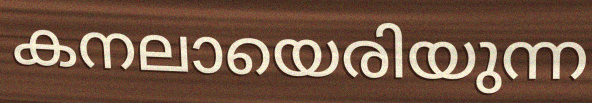
കനലായെരിയുന്ന